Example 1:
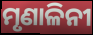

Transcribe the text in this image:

ମୃଣାଳିନୀ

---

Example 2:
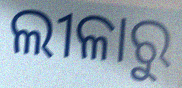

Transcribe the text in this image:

ଲୀଳାରୁ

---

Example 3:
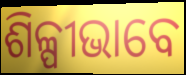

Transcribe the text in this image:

ଶିଳ୍ପୀଭାବେ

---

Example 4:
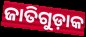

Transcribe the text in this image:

ଜାତିଗୁଡ଼ାକ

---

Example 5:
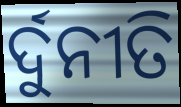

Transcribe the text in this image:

ର୍ଦୁନୀତି